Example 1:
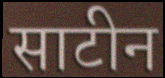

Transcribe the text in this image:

साटीन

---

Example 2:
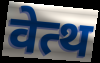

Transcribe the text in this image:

वेत्थ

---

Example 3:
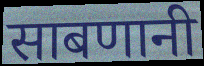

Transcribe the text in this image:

साबणानी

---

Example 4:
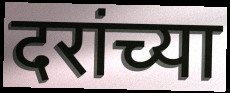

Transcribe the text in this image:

दरांच्या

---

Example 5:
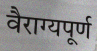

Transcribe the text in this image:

वैराग्यपूर्ण